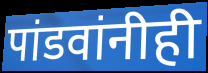
पांडवांनीही